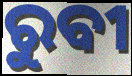
ରୁବୀ